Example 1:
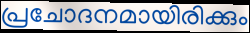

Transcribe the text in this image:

പ്രചോദനമായിരിക്കും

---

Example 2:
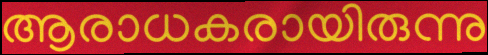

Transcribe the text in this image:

ആരാധകരായിരുന്നു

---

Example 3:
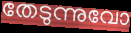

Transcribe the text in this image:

തേടുന്നുവോ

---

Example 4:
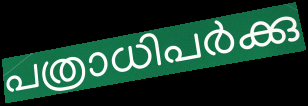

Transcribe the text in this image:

പത്രാധിപർക്കു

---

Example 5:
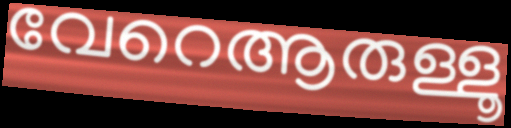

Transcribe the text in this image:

വേറെആരുള്ളൂ